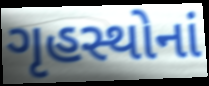
ગૃહસ્થોનાં